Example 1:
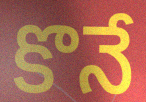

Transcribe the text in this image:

కొనే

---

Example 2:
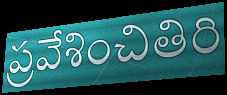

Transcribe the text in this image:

ప్రవేశించితిరి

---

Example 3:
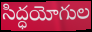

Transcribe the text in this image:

సిద్ధయోగుల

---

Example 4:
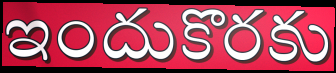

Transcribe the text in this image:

ఇందుకొరకు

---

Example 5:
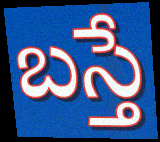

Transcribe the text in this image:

బస్తే